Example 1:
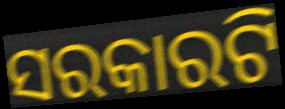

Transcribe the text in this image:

ସରକାରଟି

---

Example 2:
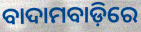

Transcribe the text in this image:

ବାଦାମବାଡ଼ିରେ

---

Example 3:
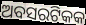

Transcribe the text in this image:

ଅବସରଟିକକ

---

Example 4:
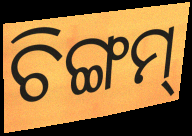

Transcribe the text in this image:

ଚିଙ୍ଗମ୍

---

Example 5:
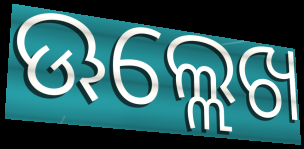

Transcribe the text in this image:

ଊଲ୍ଲେଖ